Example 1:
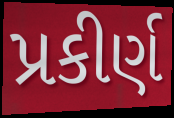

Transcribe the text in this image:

પ્રકીર્ણ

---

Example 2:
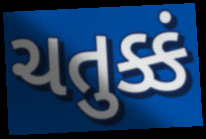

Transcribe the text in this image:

ચતુક્કં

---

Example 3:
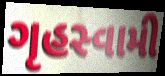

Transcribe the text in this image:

ગૃહસ્વામી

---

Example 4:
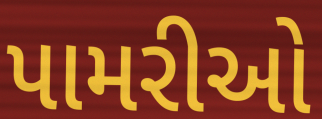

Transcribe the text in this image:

પામરીઓ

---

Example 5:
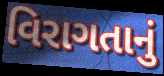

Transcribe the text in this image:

વિરાગતાનું